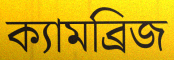
ক্যামব্রিজ